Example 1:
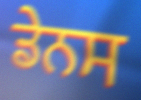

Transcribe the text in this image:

ਡੇਨਸ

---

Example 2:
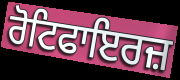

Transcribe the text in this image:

ਰੋਟਿਫਾਇਰਜ਼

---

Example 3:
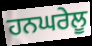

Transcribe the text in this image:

ਹਨਘਰੇਲੂ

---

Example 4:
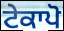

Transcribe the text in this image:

ਟੇਕਾਪੋ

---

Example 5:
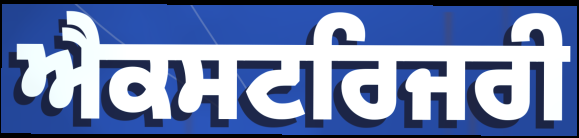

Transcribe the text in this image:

ਐਕਸਟਰਿਜਰੀ